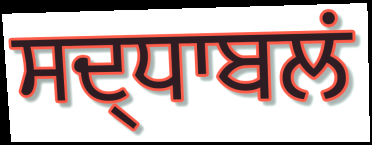
ਸਦ੍ਧਾਬਲਂ